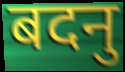
बदनु